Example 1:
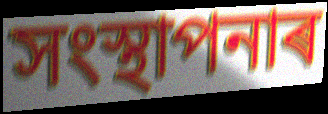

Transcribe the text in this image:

সংস্থাপনাৰ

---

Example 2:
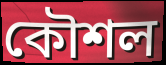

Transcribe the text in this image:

কৌশল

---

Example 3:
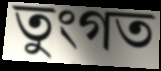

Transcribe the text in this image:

তুংগত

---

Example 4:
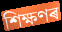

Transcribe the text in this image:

শিক্ষণৰ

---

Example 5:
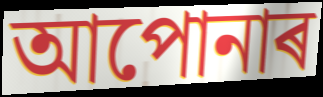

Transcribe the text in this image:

আপোনাৰ